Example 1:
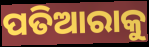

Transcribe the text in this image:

ପତିଆରାକୁ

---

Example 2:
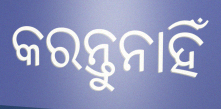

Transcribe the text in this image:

କରନ୍ତୁନାହିଁ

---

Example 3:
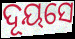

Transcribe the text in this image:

ଦୂୟସେ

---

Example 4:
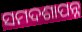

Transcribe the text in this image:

ସମଦଶାପନ୍ନ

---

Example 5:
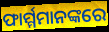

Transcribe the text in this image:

ଫାର୍ମ୍ମମାନଙ୍କରେ